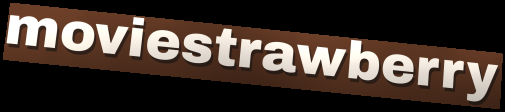
moviestrawberry